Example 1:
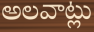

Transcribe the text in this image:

అలవాట్లు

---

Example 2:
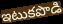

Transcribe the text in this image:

ఇటుకపొడి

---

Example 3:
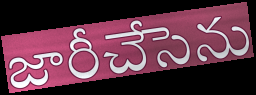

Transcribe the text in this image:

జారీచేసెను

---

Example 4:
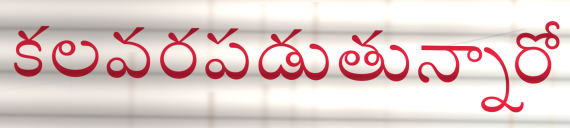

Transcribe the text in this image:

కలవరపడుతున్నారో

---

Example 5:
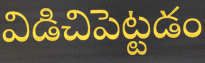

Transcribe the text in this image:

విడిచిపెట్టడం